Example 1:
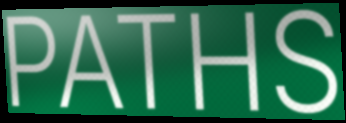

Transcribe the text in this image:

PATHS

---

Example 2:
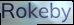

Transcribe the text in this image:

Rokeby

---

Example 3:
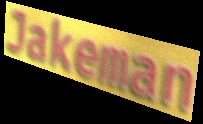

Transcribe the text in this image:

Jakeman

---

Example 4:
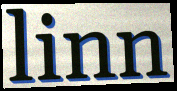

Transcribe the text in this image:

linn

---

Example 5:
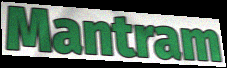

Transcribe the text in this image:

Mantram